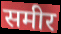
समीर